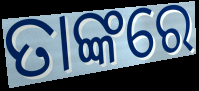
ତାଙ୍କରେ